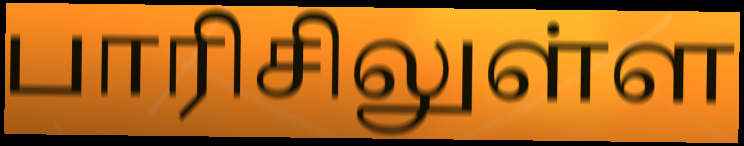
பாரிசிலுள்ள